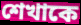
শেখাকে